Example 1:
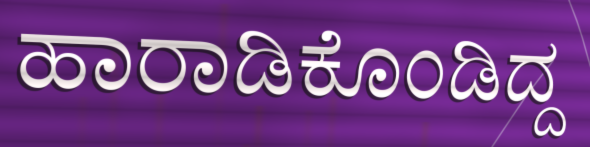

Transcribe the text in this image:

ಹಾರಾಡಿಕೊಂಡಿದ್ದ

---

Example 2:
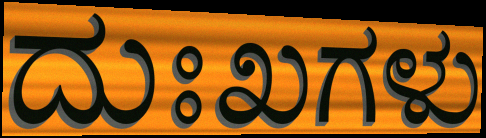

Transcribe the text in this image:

ದುಃಖಗಳು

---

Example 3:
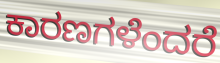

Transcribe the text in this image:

ಕಾರಣಗಳೆಂದರೆ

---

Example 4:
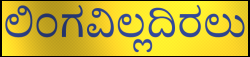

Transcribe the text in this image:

ಲಿಂಗವಿಲ್ಲದಿರಲು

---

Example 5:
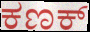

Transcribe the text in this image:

ಕಣಕ್